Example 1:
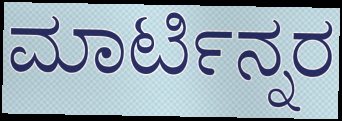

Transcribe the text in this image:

ಮಾರ್ಟಿನ್ನರ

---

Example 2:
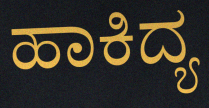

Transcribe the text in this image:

ಹಾಕಿದ್ಯ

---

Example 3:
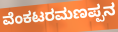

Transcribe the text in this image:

ವೆಂಕಟರಮಣಪ್ಪನ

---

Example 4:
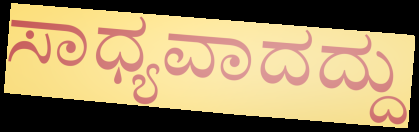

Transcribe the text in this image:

ಸಾಧ್ಯವಾದದ್ದು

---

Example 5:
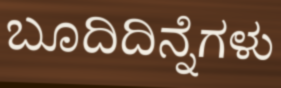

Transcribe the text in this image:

ಬೂದಿದಿನ್ನೆಗಳು